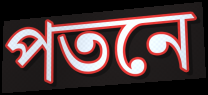
পতনে